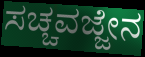
ಸಚ್ಚವಜ್ಜೇನ